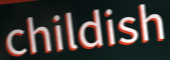
childish